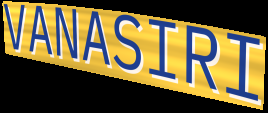
VANASIRI